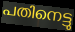
പതിനെട്ടു